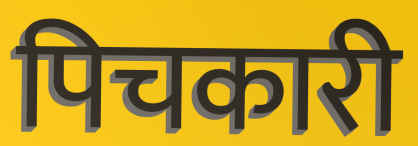
पिचकारी